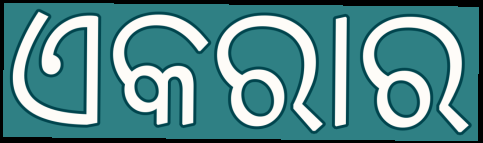
ଏକରାର